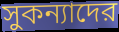
সুকন্যাদের